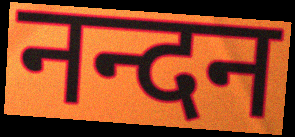
नन्‍दन